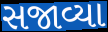
સજાવ્યા